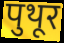
पुथूर